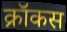
क्रॉकस